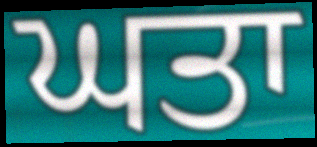
ਘਤਾ